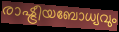
രാഷ്ട്രീയബോധ്യവും